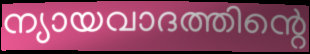
ന്യായവാദത്തിന്റെ